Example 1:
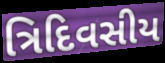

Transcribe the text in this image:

ત્રિદિવસીય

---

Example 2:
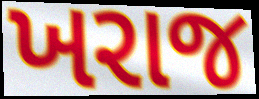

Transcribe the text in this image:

ખરાજ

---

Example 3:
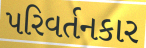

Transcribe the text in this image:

પરિવર્તનકાર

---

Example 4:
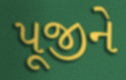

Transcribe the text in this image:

પૂજીને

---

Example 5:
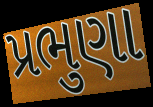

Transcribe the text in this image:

પ્રભુણા